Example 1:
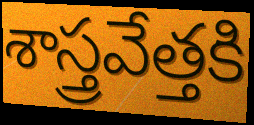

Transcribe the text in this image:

శాస్త్రవేత్తకి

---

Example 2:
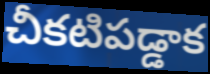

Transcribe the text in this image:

చీకటిపడ్డాక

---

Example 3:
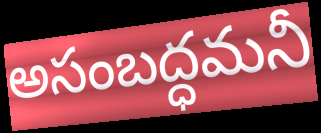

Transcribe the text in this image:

అసంబద్ధమనీ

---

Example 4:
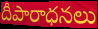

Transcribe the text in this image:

దీపారాధనలు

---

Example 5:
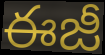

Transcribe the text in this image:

ఈజీ